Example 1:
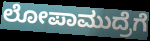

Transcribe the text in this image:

ಲೋಪಾಮುದ್ರೆಗೆ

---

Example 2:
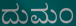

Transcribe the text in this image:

ದುಮಂ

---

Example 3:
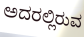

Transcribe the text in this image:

ಅದರಲ್ಲಿರುವ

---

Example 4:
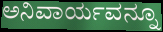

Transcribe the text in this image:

ಅನಿವಾರ್ಯವನ್ನೂ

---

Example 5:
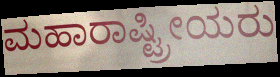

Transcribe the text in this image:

ಮಹಾರಾಷ್ಟ್ರೀಯರು